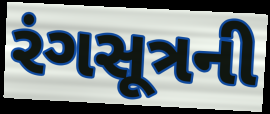
રંગસૂત્રની